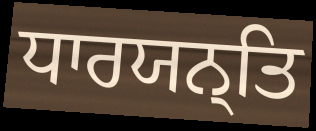
ਧਾਰਯਨ੍ਤਿ